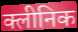
क्लीनिक